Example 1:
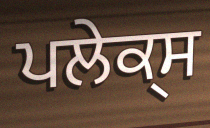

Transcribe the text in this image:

ਪਲੇਕ੍ਸ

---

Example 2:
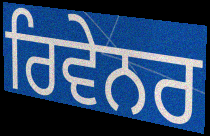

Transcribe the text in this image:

ਰਿਵੇਨਰ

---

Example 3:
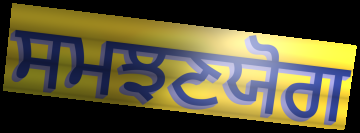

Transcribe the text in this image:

ਸਮਝਣਯੋਗ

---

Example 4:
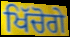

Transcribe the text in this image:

ਖਿੱਚੋਗੇ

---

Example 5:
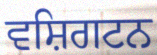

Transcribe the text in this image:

ਵਸ਼ਿਗਟਨ